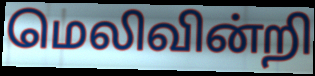
மெலிவின்றி